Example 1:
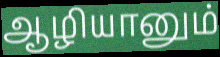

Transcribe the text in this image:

ஆழியானும்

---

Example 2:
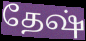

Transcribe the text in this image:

தேஷ்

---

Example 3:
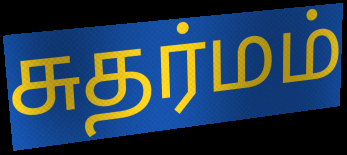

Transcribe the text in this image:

சுதர்மம்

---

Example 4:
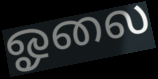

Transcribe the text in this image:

ஓலை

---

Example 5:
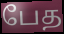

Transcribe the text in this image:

பேத